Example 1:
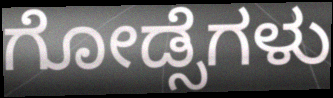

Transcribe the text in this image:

ಗೋಡ್ಸೆಗಳು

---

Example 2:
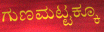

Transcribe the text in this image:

ಗುಣಮಟ್ಟಕ್ಕೂ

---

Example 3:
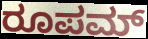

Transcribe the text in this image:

ರೂಪಮ್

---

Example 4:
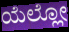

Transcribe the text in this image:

ಯೆಲ್ಲೋ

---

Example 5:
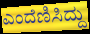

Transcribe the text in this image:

ಎಂದೆಣಿಸಿದ್ದು